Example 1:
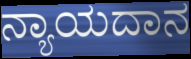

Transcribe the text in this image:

ನ್ಯಾಯದಾನ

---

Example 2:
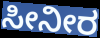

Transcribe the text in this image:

ಸೀನೀರ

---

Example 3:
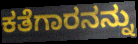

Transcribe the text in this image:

ಕತೆಗಾರನನ್ನು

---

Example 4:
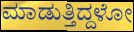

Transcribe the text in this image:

ಮಾಡುತ್ತಿದ್ದಳೋ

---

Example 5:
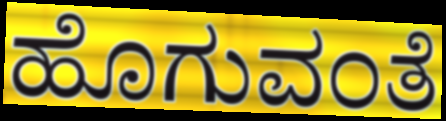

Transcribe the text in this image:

ಹೊಗುವಂತೆ